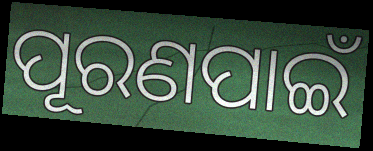
ପୂରଣପାଇଁ